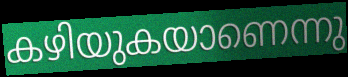
കഴിയുകയാണെന്നു